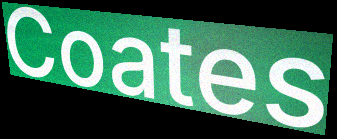
Coates